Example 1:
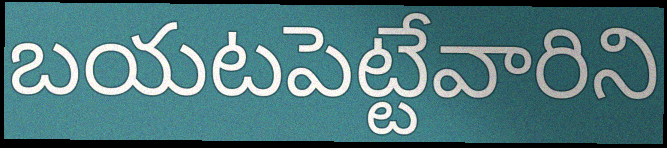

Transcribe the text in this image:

బయటపెట్టేవారిని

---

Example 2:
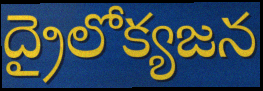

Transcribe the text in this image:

ద్రైలోక్యజన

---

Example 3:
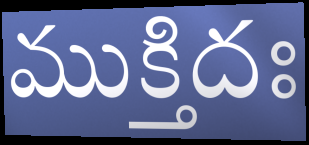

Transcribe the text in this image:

ముక్తిదః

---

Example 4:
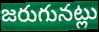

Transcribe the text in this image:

జరుగునట్లు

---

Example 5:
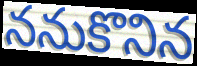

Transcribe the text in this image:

ననుకొనిన